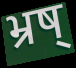
भ्रष्